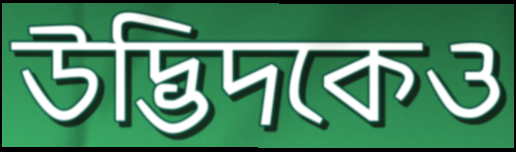
উদ্ভিদকেও